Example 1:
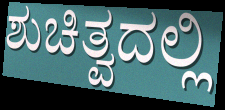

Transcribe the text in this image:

ಶುಚಿತ್ವದಲ್ಲಿ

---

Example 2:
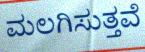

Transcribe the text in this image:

ಮಲಗಿಸುತ್ತವೆ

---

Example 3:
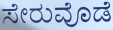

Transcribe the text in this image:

ಸೇರುವೊಡೆ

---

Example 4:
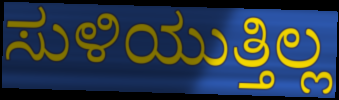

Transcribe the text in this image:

ಸುಳಿಯುತ್ತಿಲ್ಲ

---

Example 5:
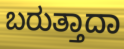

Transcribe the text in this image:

ಬರುತ್ತಾದಾ